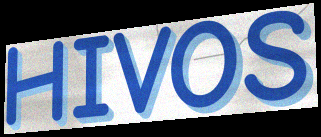
HIVOS